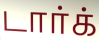
டார்க்